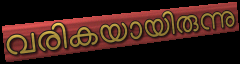
വരികയായിരുന്നു